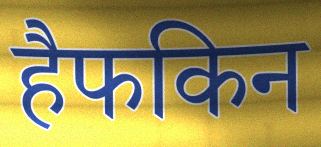
हैफकिन